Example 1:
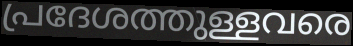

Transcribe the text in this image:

പ്രദേശത്തുള്ളവരെ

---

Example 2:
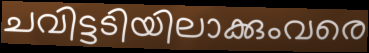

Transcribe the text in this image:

ചവിട്ടടിയിലാക്കുംവരെ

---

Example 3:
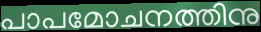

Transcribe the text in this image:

പാപമോചനത്തിനു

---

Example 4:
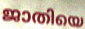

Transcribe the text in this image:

ജാതിയെ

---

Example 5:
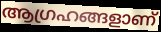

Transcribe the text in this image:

ആഗ്രഹങ്ങളാണ്